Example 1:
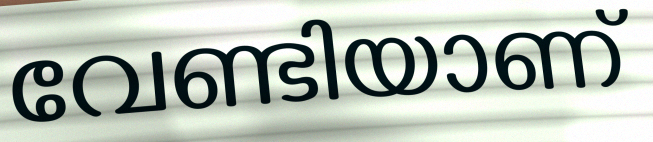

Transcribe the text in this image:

വേണ്ടിയാണ്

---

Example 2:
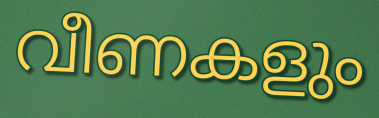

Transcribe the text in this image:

വീണകളും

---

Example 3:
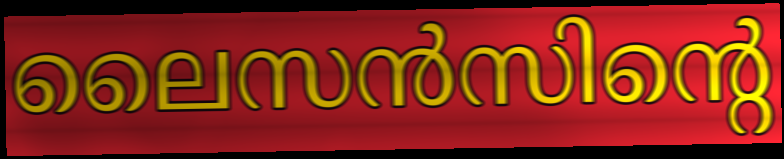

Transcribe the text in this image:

ലൈസൻസിന്റെ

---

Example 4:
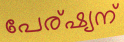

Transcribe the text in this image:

പേര്ഷ്യന്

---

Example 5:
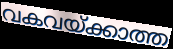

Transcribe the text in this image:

വകവയ്ക്കാത്ത